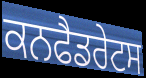
ਕਨਫੈਡਰੇਟਸ